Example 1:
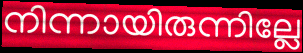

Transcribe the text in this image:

നിന്നായിരുന്നില്ലേ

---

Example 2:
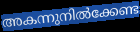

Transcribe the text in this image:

അകന്നുനിൽക്കേണ്ട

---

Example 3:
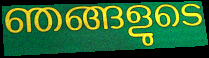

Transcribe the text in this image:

ഞങ്ങളുടെ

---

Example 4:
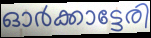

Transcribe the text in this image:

ഓർക്കാട്ടേരി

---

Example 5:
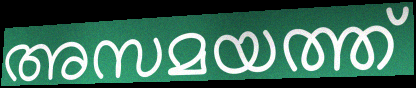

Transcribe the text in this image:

അസമയത്ത്